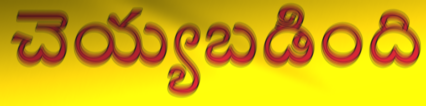
చెయ్యబడింది